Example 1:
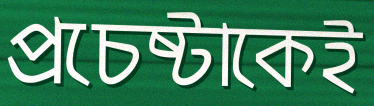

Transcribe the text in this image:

প্রচেষ্টাকেই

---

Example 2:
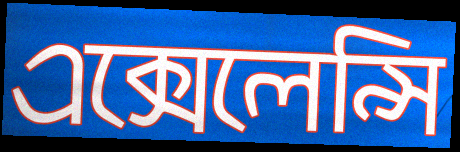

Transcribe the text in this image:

এক্সেলেন্সি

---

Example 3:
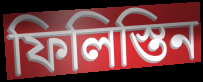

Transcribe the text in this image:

ফিলিস্তিন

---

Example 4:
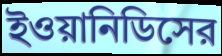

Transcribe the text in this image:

ইওয়ানিডিসের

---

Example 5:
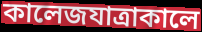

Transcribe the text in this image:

কালেজযাত্রাকালে